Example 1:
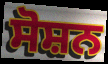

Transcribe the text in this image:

ਸੋਸ਼ਨ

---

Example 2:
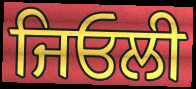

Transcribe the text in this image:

ਜਿਓਲੀ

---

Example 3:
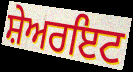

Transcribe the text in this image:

ਸ਼ੇਅਰਇਟ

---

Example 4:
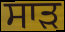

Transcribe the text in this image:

ਸਾਡ਼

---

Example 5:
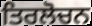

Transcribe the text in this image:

ਤਿਰਲੋਚਨ